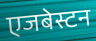
एजबेस्‍टन